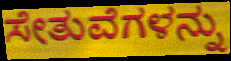
ಸೇತುವೆಗಳನ್ನು